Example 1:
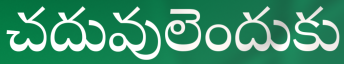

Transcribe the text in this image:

చదువులెందుకు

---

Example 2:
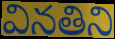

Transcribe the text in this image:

వినతిని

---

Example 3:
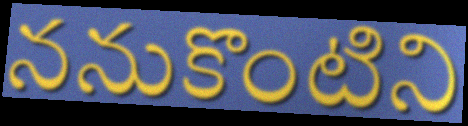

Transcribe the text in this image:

ననుకొంటిని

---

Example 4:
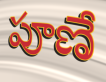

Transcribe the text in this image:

పూణే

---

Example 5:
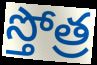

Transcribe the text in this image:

స్తోత్ర